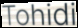
Tohidi